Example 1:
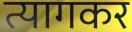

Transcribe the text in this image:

त्यागकर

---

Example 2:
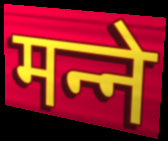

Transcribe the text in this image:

मन्ने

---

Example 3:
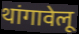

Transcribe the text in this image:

थांगावेलू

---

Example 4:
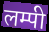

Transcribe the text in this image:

लम्पी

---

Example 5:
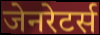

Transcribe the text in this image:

जेनरेटर्स